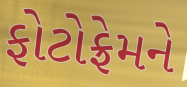
ફોટોફ્રેમને